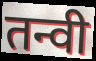
तन्वी